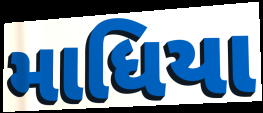
માધિયા